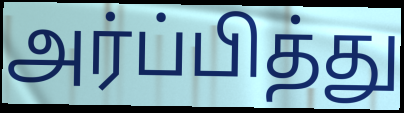
அர்ப்பித்து